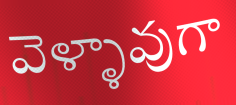
వెళ్ళావుగా